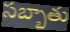
సబ్బాతు